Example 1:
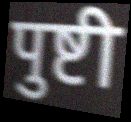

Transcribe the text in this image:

पुष्टी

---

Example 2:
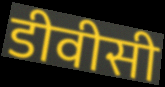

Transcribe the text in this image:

डीवीसी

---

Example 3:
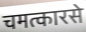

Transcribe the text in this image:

चमत्कारसे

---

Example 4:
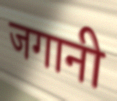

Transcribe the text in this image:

जगानी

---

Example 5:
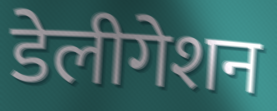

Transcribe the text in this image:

डेलीगेशन